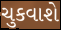
ચુકવાશે